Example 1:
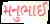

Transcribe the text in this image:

મનુભાઈ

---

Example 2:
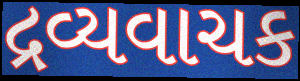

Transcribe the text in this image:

દ્રવ્યવાચક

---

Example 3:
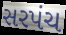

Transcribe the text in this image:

સરપંચ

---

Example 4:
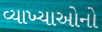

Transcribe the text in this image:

વ્યાખ્યાઓનો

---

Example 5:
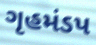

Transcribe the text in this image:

ગૃહમંડપ